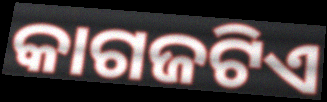
କାଗଜଟିଏ